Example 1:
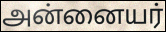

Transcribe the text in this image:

அன்னையர்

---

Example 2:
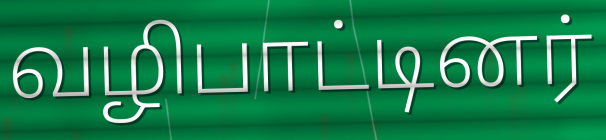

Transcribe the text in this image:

வழிபாட்டினர்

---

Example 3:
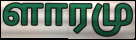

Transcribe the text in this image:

ளாரமு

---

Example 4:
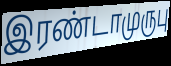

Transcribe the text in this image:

இரண்டாமுருபு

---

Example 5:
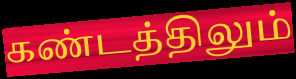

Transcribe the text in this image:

கண்டத்திலும்